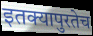
इतक्यापुरतेच